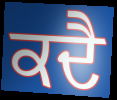
ਕਦੈ